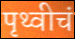
पृथ्वीचं